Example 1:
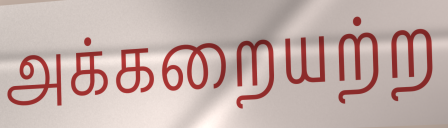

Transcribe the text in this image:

அக்கறையற்ற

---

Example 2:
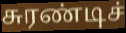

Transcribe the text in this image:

சுரண்டிச்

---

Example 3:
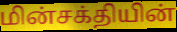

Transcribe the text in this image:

மின்சக்தியின்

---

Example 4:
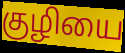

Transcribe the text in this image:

குழியை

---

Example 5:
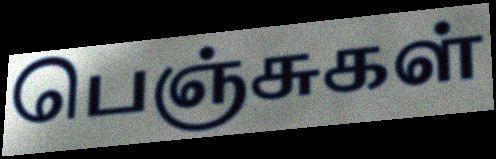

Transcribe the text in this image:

பெஞ்சுகள்